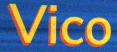
Vico